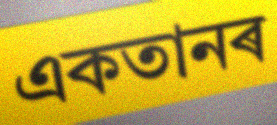
একতানৰ